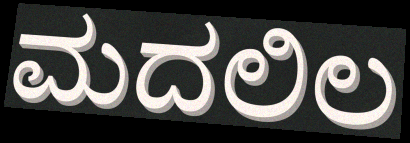
ಮದಲಿಲ